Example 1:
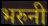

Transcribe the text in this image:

भरुनी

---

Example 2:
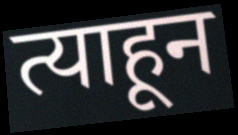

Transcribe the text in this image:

त्याहून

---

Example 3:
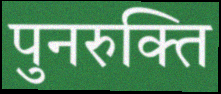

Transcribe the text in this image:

पुनरुक्ति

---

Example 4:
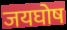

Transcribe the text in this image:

जयघोष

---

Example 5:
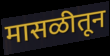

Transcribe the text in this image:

मासळीतून